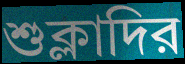
শুক্লাদির